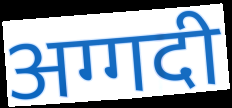
अग्गदी